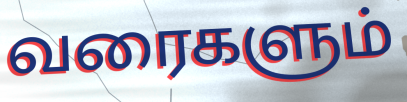
வரைகளும்